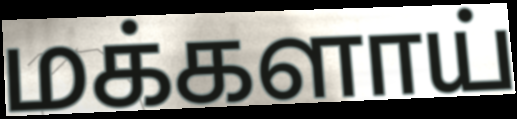
மக்களாய்